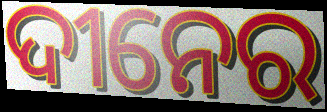
ଦୀନେର